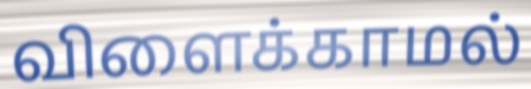
விளைக்காமல்